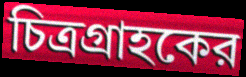
চিত্রগ্রাহকের